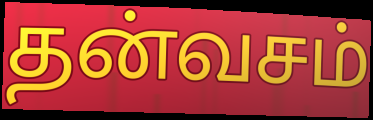
தன்வசம்